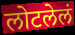
लोटलेलं